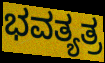
ಭವತ್ಯತ್ರ